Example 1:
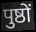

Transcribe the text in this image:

पुष्ठों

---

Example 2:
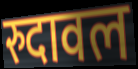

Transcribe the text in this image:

रुदावल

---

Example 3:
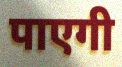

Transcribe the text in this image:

पाएगी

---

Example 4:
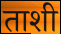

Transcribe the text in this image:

ताशी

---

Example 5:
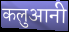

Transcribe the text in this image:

कलुआनी